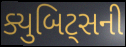
ક્યુબિટ્સની